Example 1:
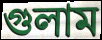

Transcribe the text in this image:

গুলাম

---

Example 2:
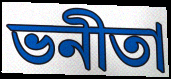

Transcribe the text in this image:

ভনীতা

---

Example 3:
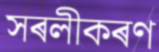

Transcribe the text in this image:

সৰলীকৰণ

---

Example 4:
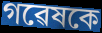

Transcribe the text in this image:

গৱেষকে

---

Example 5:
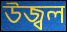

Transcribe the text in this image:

উজ্বল